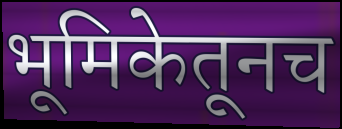
भूमिकेतूनच